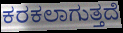
ಕರಕಲಾಗುತ್ತದೆ